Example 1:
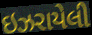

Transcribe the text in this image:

ઇઝરાયેલી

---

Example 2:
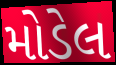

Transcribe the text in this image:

મોડેલ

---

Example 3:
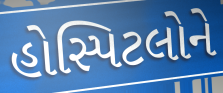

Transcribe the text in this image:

હોસ્પિટલોને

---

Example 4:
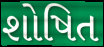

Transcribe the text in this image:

શોષિત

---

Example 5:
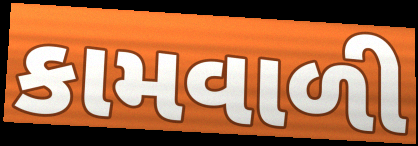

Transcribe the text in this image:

કામવાળી